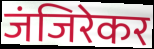
जंजिरेकर